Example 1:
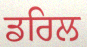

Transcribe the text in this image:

ਡਰਿਲ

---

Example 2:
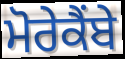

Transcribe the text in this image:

ਮੋਰੇਕੈਂਬੇ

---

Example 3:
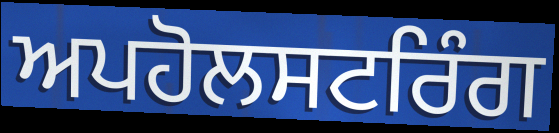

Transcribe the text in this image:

ਅਪਹੋਲਸਟਰਿੰਗ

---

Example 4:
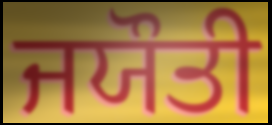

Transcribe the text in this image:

ਜਯੌਤੀ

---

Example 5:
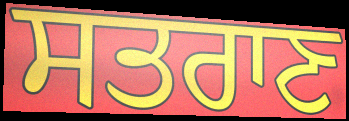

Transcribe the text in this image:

ਸਤਰਾਣ